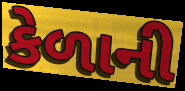
કેળાની